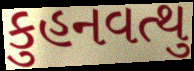
કુહનવત્થુ